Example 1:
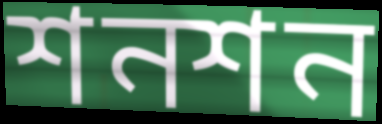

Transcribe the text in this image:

শনশন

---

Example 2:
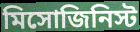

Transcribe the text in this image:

মিসোজিনিস্ট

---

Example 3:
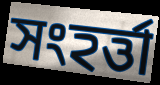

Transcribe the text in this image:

সংহর্ত্তা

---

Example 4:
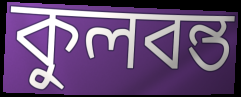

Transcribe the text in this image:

কুলবন্ত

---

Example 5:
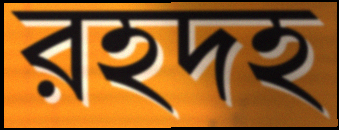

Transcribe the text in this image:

রহদহ